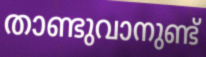
താണ്ടുവാനുണ്ട്